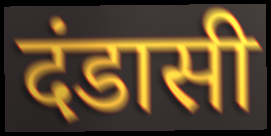
दंडासी